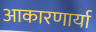
आकारणार्या